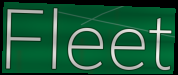
Fleet